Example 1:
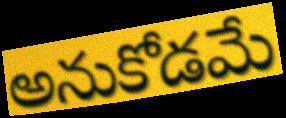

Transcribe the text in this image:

అనుకోడమే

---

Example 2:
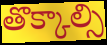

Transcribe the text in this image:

తొక్కాల్సి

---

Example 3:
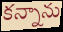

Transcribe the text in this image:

కన్నాను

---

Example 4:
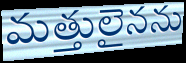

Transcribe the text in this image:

మత్తులైనను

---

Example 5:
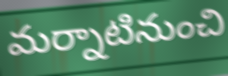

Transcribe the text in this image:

మర్నాటినుంచి